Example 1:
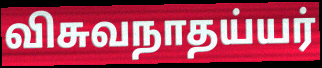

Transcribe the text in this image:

விசுவநாதய்யர்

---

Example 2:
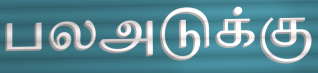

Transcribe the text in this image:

பலஅடுக்கு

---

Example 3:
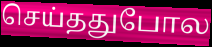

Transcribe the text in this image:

செய்ததுபோல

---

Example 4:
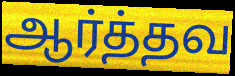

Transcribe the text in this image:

ஆர்த்தவ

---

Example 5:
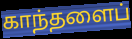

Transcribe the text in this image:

காந்தளைப்